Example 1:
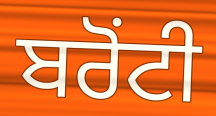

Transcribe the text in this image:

ਬਰੋਂਟੀ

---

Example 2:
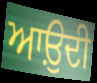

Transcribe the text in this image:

ਆਉ਼ਦੀ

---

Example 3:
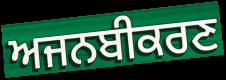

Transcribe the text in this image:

ਅਜਨਬੀਕਰਣ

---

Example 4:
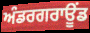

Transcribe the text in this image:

ਅੰਡਰਗਰਾਊਂਡ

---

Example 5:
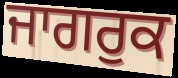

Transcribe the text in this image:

ਜਾਗਰੁਕ